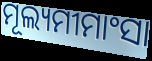
ମୂଲ୍ୟମୀମାଂସା